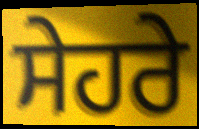
ਸੇਹਰੇ